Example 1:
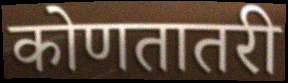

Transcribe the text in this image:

कोणतातरी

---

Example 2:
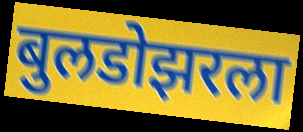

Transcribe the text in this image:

बुलडोझरला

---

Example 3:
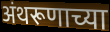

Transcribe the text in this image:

अंथरूणाच्या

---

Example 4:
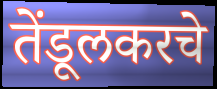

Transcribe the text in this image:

तेंडूलकरचे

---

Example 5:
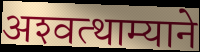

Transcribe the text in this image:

अश्वत्थाम्याने